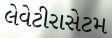
લેવેટીરાસેટમ